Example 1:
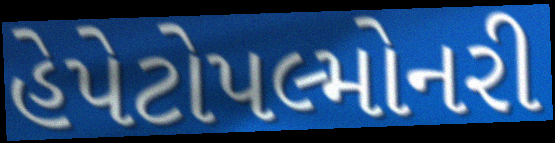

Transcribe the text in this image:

હેપેટોપલ્મોનરી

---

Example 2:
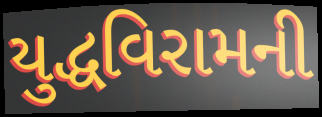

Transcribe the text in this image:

યુદ્ધવિરામની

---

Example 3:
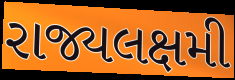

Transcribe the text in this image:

રાજ્યલક્ષમી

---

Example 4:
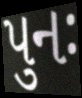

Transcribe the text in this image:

પુનઃ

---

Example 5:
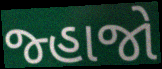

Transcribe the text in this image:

જ્હાજો